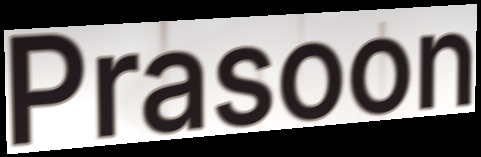
Prasoon